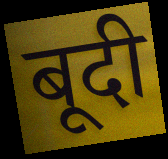
बूदी